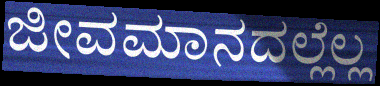
ಜೀವಮಾನದಲ್ಲೆಲ್ಲ